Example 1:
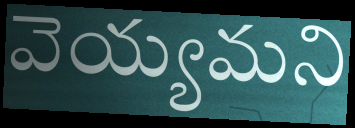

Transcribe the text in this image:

వెయ్యమని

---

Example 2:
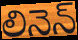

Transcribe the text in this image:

లినెన్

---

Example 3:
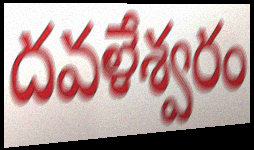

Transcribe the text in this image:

దవళేశ్వరం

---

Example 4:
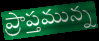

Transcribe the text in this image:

ప్రాప్తమున్న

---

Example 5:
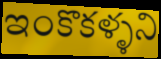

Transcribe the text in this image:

ఇంకొకళ్ళని